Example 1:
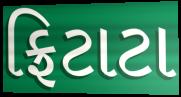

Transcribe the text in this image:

ફ્રિટાટા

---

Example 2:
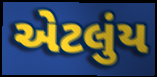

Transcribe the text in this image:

એટલુંય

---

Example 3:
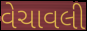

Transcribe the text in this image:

વેચાવલી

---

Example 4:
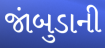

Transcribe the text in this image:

જાંબુડાની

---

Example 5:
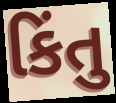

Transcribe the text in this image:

કિંતુ